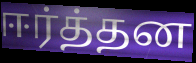
ஈர்த்தன